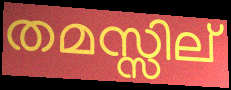
തമസ്സില്